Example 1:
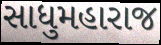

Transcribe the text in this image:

સાધુમહારાજ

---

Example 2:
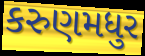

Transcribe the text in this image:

કરુણમધુર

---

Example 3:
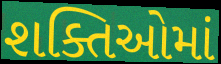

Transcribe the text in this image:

શક્તિઓમાં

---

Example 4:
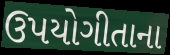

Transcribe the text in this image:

ઉપયોગીતાના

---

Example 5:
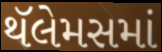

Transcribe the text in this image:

થૅલેમસમાં